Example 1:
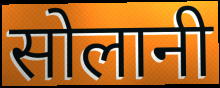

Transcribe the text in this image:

सोलानी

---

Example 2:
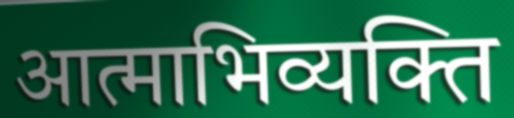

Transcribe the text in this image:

आत्माभिव्यक्ति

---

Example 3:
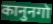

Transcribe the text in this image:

कानुनगो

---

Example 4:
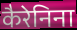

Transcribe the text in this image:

कैरेनिना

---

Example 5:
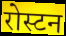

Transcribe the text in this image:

रोस्टन